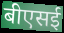
बीएसई